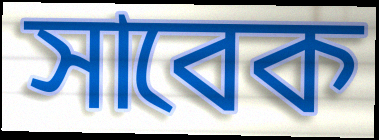
সাবেক